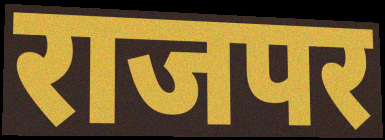
राजपर